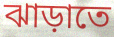
ঝাড়াতে